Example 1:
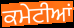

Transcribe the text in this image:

ਕਮੇਟੀਆਂ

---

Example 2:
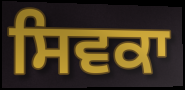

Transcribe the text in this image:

ਸਿਵਕਾ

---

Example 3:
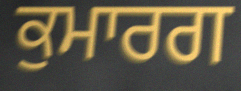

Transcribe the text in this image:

ਕੁਮਾਰਗ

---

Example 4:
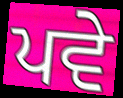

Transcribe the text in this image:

ਪਵੇ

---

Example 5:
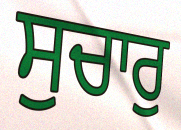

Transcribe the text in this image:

ਸੁਚਾਰੁ